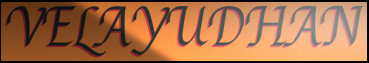
VELAYUDHAN